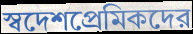
স্বদেশপ্রেমিকদের